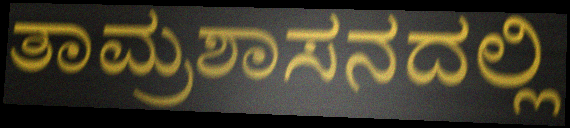
ತಾಮ್ರಶಾಸನದಲ್ಲಿ